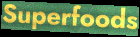
Superfoods